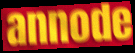
annode